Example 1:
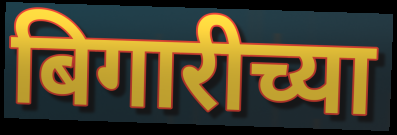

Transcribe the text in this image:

बिगारीच्या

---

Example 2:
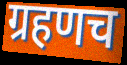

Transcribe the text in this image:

ग्रहणच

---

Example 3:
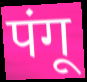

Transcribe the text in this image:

पंगू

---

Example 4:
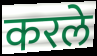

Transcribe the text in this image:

करले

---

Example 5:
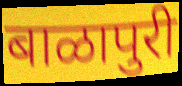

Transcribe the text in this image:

बाळापुरी